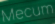
Mecum